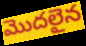
మొదలైన